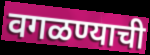
वगळण्याची